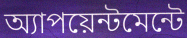
অ্যাপয়েন্টমেন্টে